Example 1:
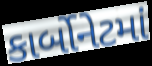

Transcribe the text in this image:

કાર્બોનેટમાં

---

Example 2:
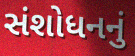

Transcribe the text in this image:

સંશોધનનું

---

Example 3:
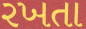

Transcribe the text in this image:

રખતા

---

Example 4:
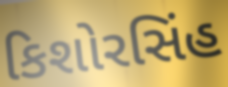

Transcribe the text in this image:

કિશોરસિંહ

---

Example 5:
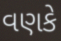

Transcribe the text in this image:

વણકે